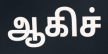
ஆகிச்